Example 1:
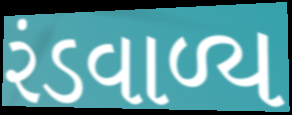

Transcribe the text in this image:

રંડવાળ્ય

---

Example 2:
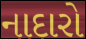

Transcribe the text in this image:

નાદારો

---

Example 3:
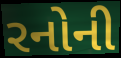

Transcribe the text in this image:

રનોની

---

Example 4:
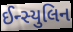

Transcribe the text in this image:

ઈન્સ્યુલિન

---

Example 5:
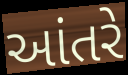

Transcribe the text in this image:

આંતરે